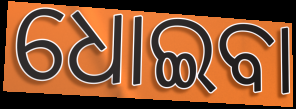
ଧୋଇବା